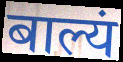
बाल्यं